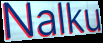
Nalku